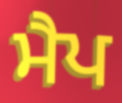
ਮੈਪ